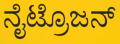
ನೈಟ್ರೊಜನ್